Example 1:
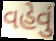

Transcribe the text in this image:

વહેવું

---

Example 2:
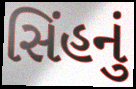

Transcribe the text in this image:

સિંહનું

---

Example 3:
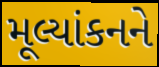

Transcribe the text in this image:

મૂલ્યાંકનને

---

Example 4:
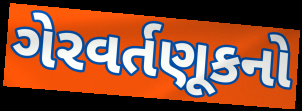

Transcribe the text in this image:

ગેરવર્તણૂકનો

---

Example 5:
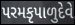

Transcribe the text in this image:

પરમકૃપાળુદેવે